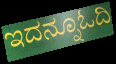
ಇದನ್ನೂಓದಿ